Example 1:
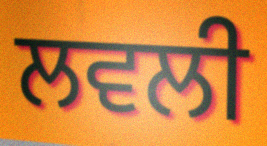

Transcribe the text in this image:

ਲਵਲੀ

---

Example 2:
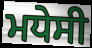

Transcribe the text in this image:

ਮਧੇਸੀ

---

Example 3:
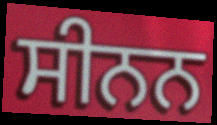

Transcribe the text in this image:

ਸੀਨਨ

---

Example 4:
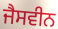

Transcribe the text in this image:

ਜੈਸਵੀਨ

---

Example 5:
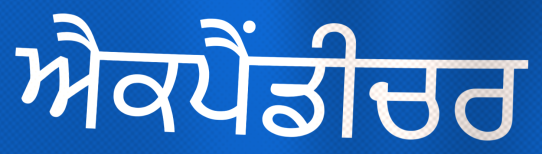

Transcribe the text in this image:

ਐਕਪੈਂਡੀਚਰ